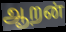
ஆறன்